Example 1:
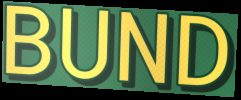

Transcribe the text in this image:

BUND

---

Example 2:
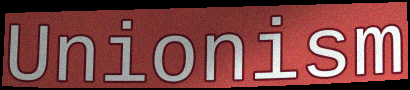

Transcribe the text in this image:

Unionism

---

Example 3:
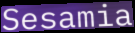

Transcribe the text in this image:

Sesamia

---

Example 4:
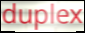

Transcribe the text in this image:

duplex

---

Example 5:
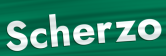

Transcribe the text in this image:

Scherzo